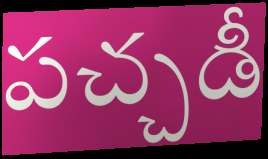
పచ్చడీ